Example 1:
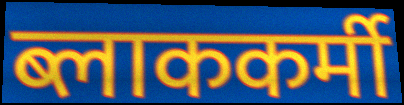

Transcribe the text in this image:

ब्लाककर्मी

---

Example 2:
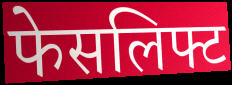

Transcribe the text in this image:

फेसलिफ्ट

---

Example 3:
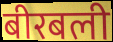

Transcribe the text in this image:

बीरबली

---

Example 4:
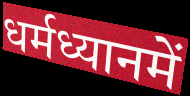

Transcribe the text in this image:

धर्मध्यानमें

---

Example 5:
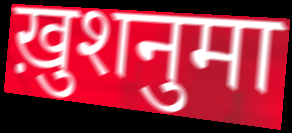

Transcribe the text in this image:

ख़ुशनुमा